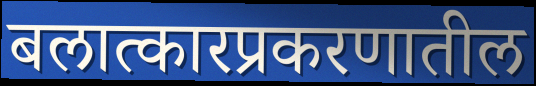
बलात्कारप्रकरणातील